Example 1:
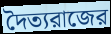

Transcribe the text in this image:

দৈত্যরাজের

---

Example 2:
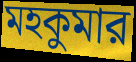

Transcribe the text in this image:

মহকুমার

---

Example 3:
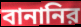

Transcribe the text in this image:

বানানির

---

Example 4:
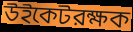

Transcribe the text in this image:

উইকেটরক্ষক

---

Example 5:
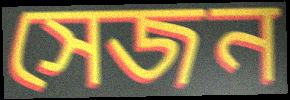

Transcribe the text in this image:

সেজন